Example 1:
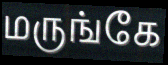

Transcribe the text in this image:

மருங்கே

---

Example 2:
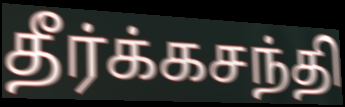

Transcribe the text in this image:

தீர்க்கசந்தி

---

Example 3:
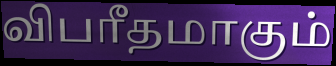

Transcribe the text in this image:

விபரீதமாகும்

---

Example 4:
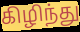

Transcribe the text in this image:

கிழிந்து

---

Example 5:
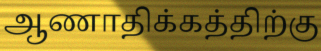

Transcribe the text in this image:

ஆணாதிக்கத்திற்கு